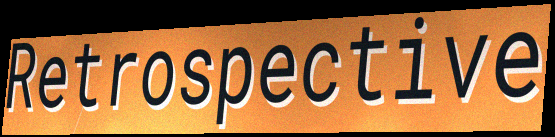
Retrospective